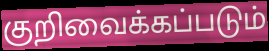
குறிவைக்கப்படும்